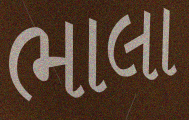
ભાલા